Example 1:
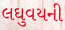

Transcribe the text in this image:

લઘુવયની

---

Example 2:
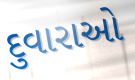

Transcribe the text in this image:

દુવારાઓ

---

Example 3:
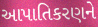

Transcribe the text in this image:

આપાતિકરણને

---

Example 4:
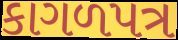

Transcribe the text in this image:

કાગળપત્ર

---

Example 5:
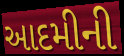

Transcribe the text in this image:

આદમીની